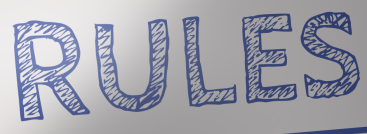
RULES